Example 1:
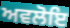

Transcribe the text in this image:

ਅਵਲੋਇ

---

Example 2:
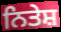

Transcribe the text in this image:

ਨਿਤੇਸ਼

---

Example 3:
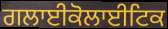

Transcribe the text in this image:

ਗਲਾਈਕੋਲਾਈਟਿਕ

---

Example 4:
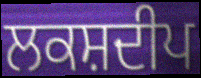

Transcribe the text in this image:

ਲਕਸ਼ਦੀਪ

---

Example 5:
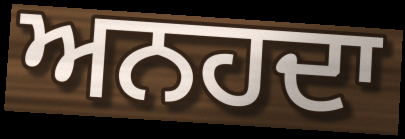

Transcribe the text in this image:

ਅਨਹਦਾ